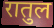
रातुल